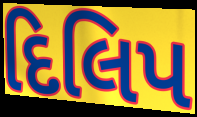
દિલિપ